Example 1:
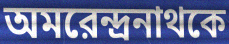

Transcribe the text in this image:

অমরেন্দ্রনাথকে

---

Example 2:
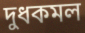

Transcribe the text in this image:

দুধকমল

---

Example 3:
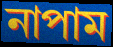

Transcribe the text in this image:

নাপাম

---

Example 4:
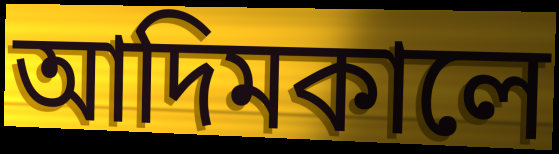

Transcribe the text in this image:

আদিমকালে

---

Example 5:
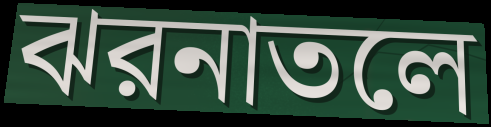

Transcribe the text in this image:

ঝরনাতলে